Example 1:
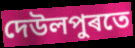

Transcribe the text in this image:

দেউলপুৰতে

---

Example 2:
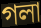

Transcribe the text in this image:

গলা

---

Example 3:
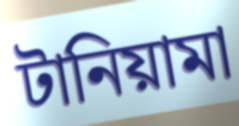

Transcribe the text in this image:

টানিয়ামা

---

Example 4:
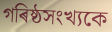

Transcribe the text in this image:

গৰিষ্ঠসংখ্যকে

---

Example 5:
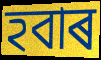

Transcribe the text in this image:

হবাৰ